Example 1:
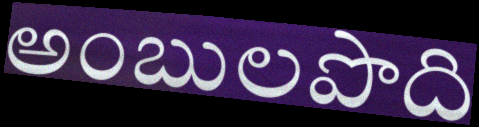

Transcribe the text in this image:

అంబులపొది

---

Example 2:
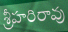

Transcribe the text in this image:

శ్రీహరిరావు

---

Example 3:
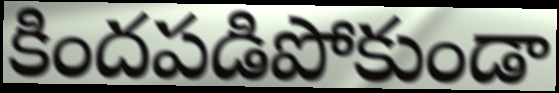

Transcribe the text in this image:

కిందపడిపోకుండా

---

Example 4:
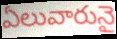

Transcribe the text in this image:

ఏలువారునై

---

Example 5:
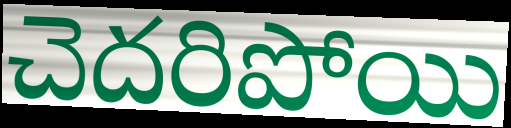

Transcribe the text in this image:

చెదరిపోయి